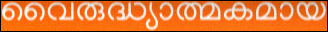
വൈരുദ്ധ്യാത്മകമായ